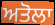
ਅਤੋਲਾ